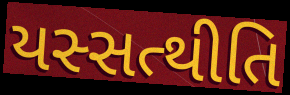
યસ્સત્થીતિ